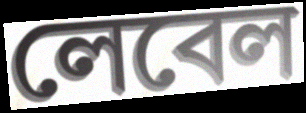
লেবেল